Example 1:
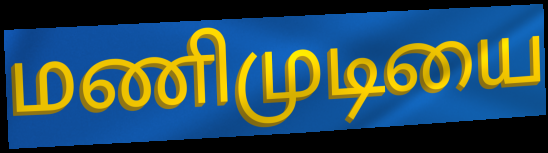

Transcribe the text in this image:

மணிமுடியை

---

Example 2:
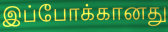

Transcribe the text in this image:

இப்போக்கானது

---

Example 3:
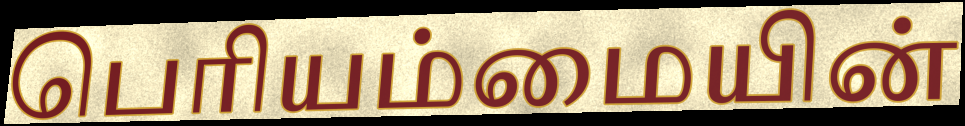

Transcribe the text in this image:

பெரியம்மையின்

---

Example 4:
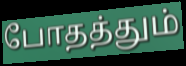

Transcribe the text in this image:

போதத்தும்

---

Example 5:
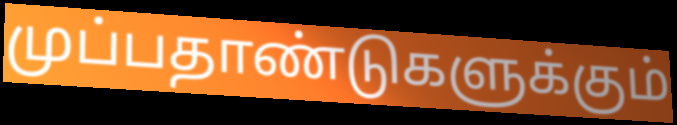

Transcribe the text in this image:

முப்பதாண்டுகளுக்கும்